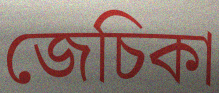
জেচিকা